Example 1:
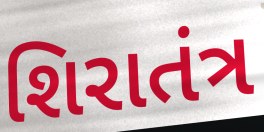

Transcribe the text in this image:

શિરાતંત્ર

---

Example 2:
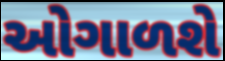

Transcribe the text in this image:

ઓગાળશે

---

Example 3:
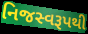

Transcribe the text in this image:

નિજસ્વરૂપથી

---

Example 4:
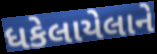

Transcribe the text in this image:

ધકેલાયેલાને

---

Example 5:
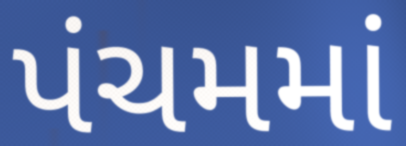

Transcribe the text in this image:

પંચમમાં